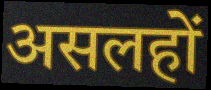
असलहों